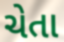
ચેતા